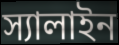
স্যালাইন